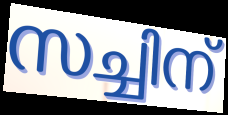
സച്ചിന്